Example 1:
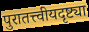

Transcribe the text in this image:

पुरातत्त्वीयदृष्ट्या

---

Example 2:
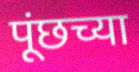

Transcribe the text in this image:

पूंछच्या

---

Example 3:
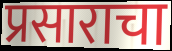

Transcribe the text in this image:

प्रसाराचा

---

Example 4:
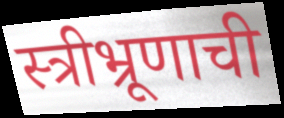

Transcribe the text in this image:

स्त्रीभ्रूणाची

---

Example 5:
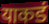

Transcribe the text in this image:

याकडं